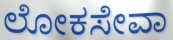
ಲೋಕಸೇವಾ